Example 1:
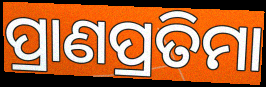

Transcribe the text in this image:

ପ୍ରାଣପ୍ରତିମା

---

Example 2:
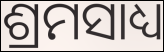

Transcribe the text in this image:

ଶ୍ରମସାଧ୍ୟ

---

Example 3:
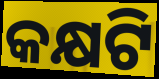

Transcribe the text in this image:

କକ୍ଷଟି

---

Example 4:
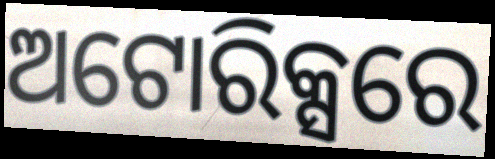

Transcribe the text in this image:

ଅଟୋରିକ୍ସରେ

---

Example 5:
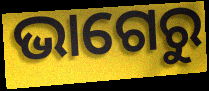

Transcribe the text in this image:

ଭାଗେରୁ